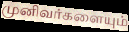
முனிவர்களையும்